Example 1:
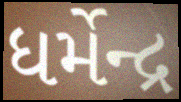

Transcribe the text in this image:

ધર્મેન્દ્ર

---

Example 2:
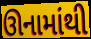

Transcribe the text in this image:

ઊનામાંથી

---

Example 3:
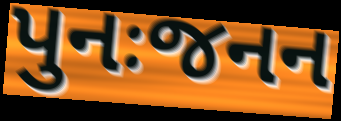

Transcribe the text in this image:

પુનઃજનન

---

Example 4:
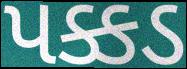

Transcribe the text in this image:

પક્કડ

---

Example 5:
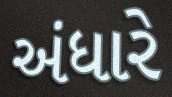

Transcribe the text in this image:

અંધારે